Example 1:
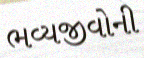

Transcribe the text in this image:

ભવ્યજીવોની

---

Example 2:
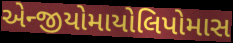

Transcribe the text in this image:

એન્જીયોમાયોલિપોમાસ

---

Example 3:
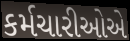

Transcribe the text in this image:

કર્મચારીઓએ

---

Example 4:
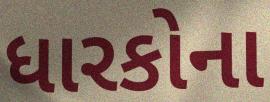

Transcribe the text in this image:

ધારકોના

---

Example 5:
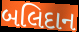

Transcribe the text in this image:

બલિદાન